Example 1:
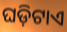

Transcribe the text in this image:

ଘଡ଼ିଟାଏ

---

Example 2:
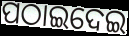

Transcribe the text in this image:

ପଠାଇଦେଇ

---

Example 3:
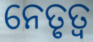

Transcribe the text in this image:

ନେତୃତ୍ଵ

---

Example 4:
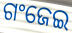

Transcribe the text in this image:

ଗଂଜେଇ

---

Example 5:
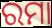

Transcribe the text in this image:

ରମା